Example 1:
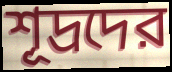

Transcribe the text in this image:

শূদ্রদের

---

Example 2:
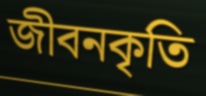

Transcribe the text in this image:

জীবনকৃতি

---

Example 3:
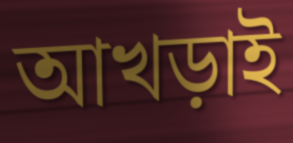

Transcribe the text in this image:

আখড়াই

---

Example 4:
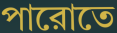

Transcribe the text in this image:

পারোতে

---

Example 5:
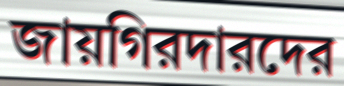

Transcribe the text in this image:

জায়গিরদারদের